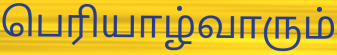
பெரியாழ்வாரும்